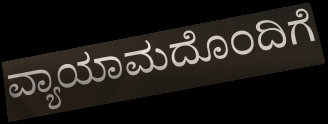
ವ್ಯಾಯಾಮದೊಂದಿಗೆ